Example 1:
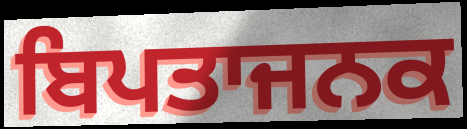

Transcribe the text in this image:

ਬਿਪਤਾਜਨਕ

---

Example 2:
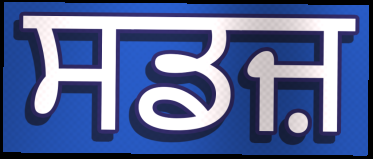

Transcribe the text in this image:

ਸਡਜ਼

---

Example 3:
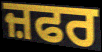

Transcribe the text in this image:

ਜ਼ਫਰ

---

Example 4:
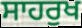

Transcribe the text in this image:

ਸਾਹਰੁਖ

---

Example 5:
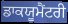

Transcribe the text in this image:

ਡਾਕਯੂਮੈਂਟਰੀ